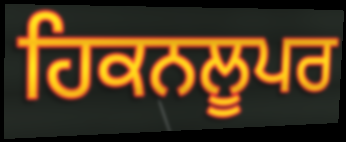
ਹਿਕਨਲੂਪਰ